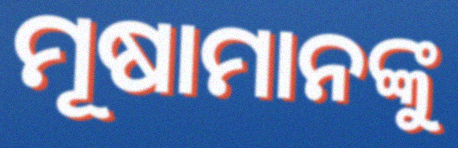
ମୂଷାମାନଙ୍କୁ